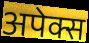
अपेक्स